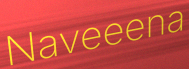
Naveeena